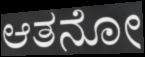
ಆತನೋ